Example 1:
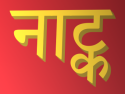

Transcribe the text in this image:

नाट्क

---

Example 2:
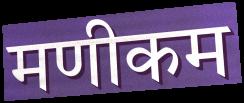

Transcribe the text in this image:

मणीकम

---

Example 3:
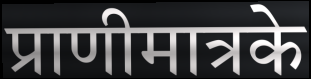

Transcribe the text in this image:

प्राणीमात्रके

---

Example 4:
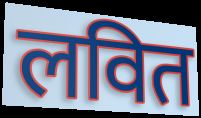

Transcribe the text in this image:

लवित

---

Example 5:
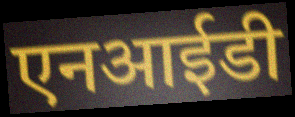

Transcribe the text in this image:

एनआईडी